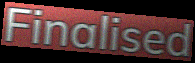
Finalised